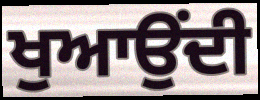
ਖੁਆਉਂਦੀ